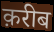
क़रीब